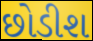
છોડીશ